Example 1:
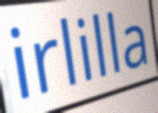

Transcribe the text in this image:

irlilla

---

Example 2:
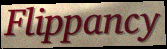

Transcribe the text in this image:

Flippancy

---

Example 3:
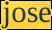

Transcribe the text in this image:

jose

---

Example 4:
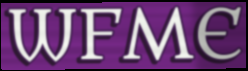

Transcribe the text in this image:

WFME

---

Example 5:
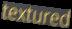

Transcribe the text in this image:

textured